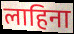
लाहिना